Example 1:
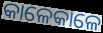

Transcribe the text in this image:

କାଳେକାଳେ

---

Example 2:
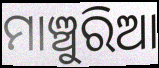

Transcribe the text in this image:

ମାଞ୍ଚୁରିଆ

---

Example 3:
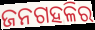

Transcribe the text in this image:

ଜନଗହଳିର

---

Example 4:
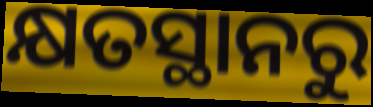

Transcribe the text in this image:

କ୍ଷତସ୍ଥାନରୁ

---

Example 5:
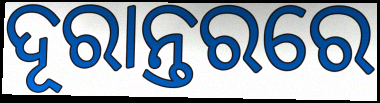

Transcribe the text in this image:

ଦୂରାନ୍ତରରେ